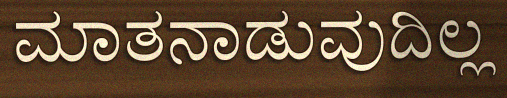
ಮಾತನಾಡುವುದಿಲ್ಲ